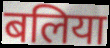
बलिया